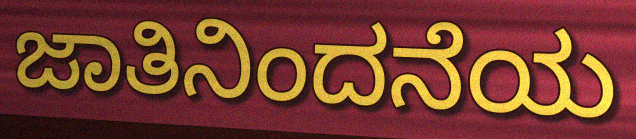
ಜಾತಿನಿಂದನೆಯ